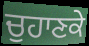
ਚੁਹਾਣਕੇ